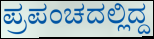
ಪ್ರಪಂಚದಲ್ಲಿದ್ದ